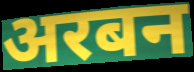
अरबन